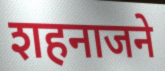
शहनाजने